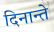
दिनान्ते